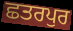
ਛਤਰਪੁਰ